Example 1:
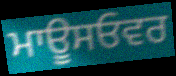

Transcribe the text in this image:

ਮਾਊਸਓਵਰ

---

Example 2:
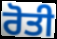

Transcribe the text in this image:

ਰੋਤੀ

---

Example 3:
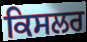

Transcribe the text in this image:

ਕਿਸਲਰ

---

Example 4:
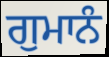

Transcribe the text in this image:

ਗੁਮਾਨੰ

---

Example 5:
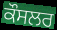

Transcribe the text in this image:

ਕੌਸਲਰ